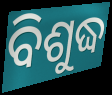
ବିଶୁଦ୍ଧ